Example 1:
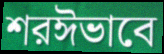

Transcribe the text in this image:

শরঈভাবে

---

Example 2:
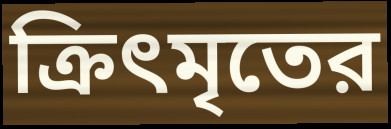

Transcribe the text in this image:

ক্রিৎমৃতের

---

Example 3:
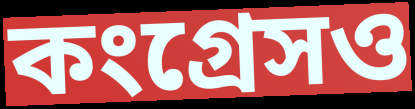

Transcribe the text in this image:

কংগ্রেসও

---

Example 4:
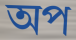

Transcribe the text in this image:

অপ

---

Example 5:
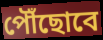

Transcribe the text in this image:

পৌঁছোবে